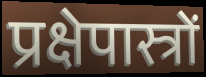
प्रक्षेपास्त्रों